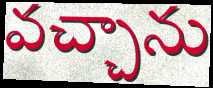
వచ్చాను